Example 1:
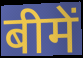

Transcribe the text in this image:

बीमें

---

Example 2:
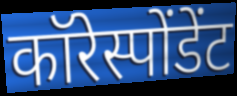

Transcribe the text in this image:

कॉरेस्पोंडेंट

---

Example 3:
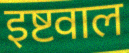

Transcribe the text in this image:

इष्टवाल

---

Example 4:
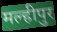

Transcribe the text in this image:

मल्हीपुर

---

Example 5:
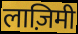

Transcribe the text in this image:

लाज़िमी